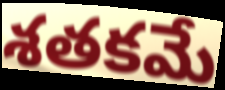
శతకమే